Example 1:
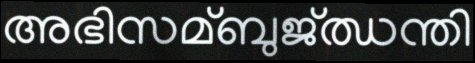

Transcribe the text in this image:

അഭിസമ്ബുജ്ഝന്തി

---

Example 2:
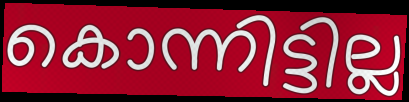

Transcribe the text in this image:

കൊന്നിട്ടില്ല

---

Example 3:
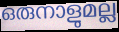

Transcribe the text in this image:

ഒരുനാളുമല്ല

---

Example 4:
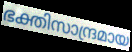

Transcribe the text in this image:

ഭക്തിസാന്ദ്രമായ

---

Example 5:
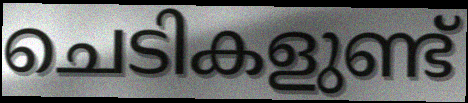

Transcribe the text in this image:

ചെടികളുണ്ട്